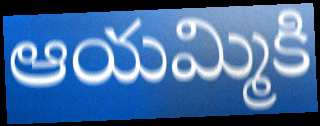
ఆయమ్మికి